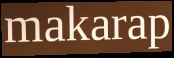
makarap